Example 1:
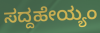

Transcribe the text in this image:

ಸದ್ದಹೇಯ್ಯಂ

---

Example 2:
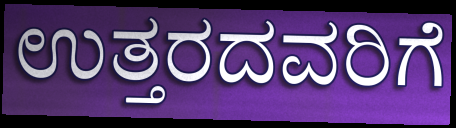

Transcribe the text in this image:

ಉತ್ತರದವರಿಗೆ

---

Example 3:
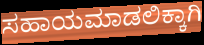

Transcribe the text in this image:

ಸಹಾಯಮಾಡಲಿಕ್ಕಾಗಿ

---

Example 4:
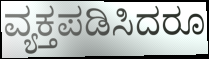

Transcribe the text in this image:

ವ್ಯಕ್ತಪಡಿಸಿದರೂ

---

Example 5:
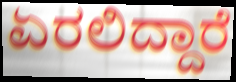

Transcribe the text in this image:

ಏರಲಿದ್ದಾರೆ